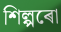
শিল্পৰো